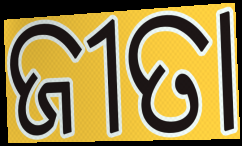
ଜୀତା